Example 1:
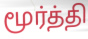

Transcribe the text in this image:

மூர்த்தி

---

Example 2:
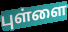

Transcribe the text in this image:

புள்ளை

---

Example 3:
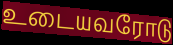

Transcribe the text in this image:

உடையவரோடு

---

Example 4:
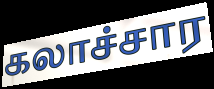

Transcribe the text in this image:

கலாச்சார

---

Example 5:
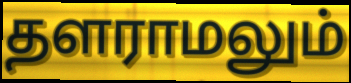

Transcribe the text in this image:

தளராமலும்